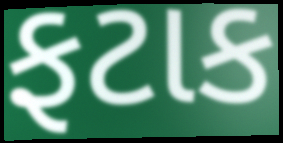
ફટાક